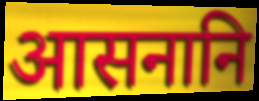
आसनानि